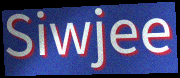
Siwjee